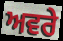
ਅਵਰੇ